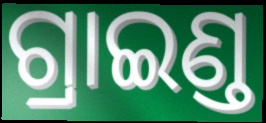
ଗ୍ରାଇଣ୍ଡ